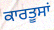
ਕਾਰਤੂਸਾਂ